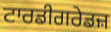
ਟਾਰਡੀਗਰੇਡਜ਼